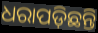
ଧରାପଡ଼ିଛନ୍ତି